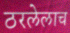
ठरलेलाच